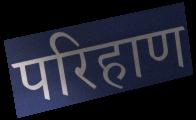
परिहाण